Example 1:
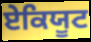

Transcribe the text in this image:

ਏਕਿਯੂਟ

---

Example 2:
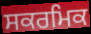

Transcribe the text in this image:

ਸਕਰਮਿਕ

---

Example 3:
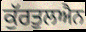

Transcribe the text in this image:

ਕੁੱਰਤੁਲਐਨ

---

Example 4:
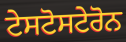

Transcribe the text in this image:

ਟੇਸਟੋਸਟੇਰੋਨ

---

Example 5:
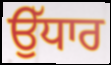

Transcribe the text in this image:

ਉੱਧਾਰ